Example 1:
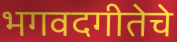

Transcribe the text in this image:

भगवदगीतेचे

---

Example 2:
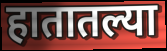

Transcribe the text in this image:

हातातल्या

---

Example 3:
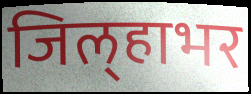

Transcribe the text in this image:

जिल्हाभर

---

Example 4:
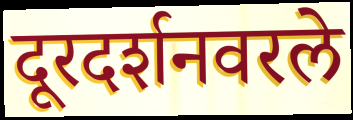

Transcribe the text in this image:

दूरदर्शनवरले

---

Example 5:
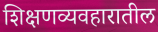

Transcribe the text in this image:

शिक्षणव्यवहारातील